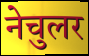
नेचुलर